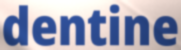
dentine